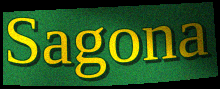
Sagona